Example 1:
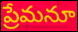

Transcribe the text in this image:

ప్రేమనూ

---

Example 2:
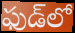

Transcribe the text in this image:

ఫుడ్‌లో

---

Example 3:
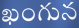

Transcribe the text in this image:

ఖంగున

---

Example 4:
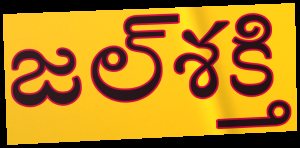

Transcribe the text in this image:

జల్‌శక్తి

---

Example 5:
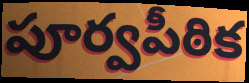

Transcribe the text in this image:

పూర్వపీఠిక